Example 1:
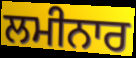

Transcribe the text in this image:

ਲਮੀਨਾਰ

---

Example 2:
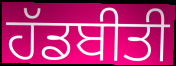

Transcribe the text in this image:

ਹੱਡਬੀਤੀ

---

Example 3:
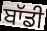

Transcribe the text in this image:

ਬਾੱਡੀ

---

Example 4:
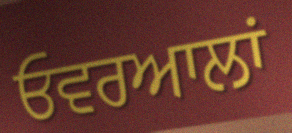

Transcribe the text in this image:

ਓਵਰਆਲਾਂ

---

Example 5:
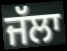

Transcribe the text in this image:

ਜੱਲਾ